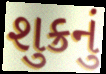
શુક્રનું